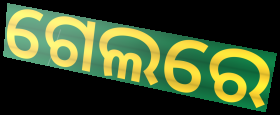
ଗେଲରେ